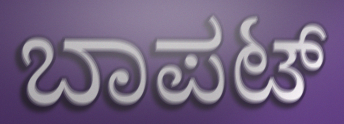
ಬಾಪಟ್